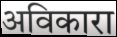
अविकारा